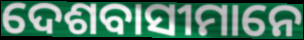
ଦେଶବାସୀମାନେ